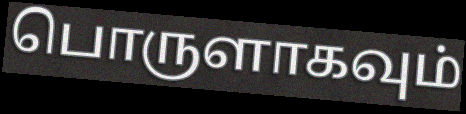
பொருளாகவும்